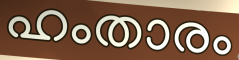
ഹംതാരം